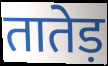
तातेड़